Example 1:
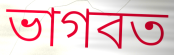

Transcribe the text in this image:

ভাগবত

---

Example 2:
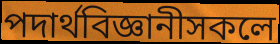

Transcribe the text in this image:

পদাৰ্থবিজ্ঞানীসকলে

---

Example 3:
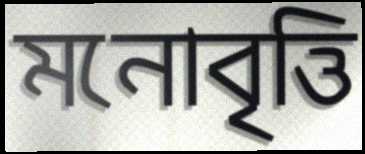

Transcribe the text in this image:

মনোবৃত্তি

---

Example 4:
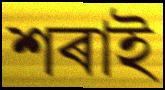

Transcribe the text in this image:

শৰাই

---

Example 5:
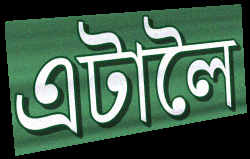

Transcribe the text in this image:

এটালৈ